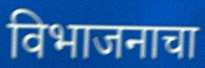
विभाजनाचा